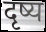
दृष्य